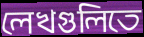
লেখগুলিতে